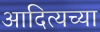
आदित्यच्या